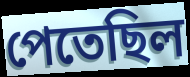
পেতেছিল